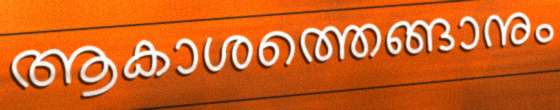
ആകാശത്തെങ്ങാനും